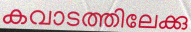
കവാടത്തിലേക്കു